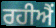
ਰਹੀਐਂ